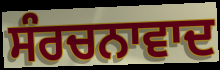
ਸੰਰਚਨਾਵਾਦ